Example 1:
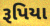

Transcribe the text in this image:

રૂપિયા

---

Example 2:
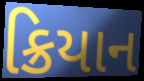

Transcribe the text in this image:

ક્રિયાન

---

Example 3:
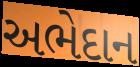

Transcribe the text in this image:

અભેદાન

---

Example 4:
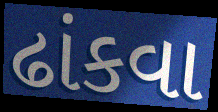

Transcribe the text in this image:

ઢાંકવા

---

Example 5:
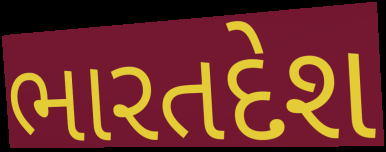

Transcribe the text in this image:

ભારતદેશ